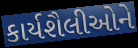
કાર્યશૈલીઓને